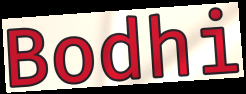
Bodhi